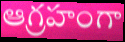
ఆగ్రహంగా